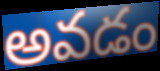
అవడం